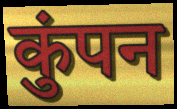
कुंपन